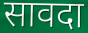
सावदा